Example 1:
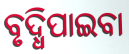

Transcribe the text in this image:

ବୃଦ୍ଧିପାଇବା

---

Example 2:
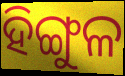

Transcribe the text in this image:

ହିଙ୍ଗୁଳ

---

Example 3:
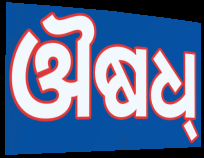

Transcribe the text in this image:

ଔଷଧ୍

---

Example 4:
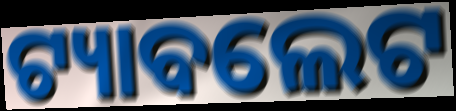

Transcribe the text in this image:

ଟ୍ୟାବଲେଟ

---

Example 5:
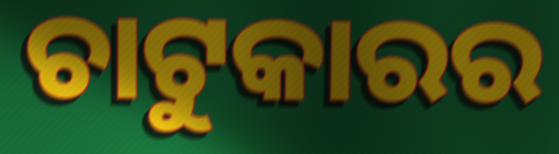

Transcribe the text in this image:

ଚାଟୁକାରର